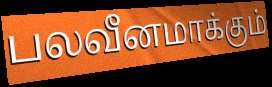
பலவீனமாக்கும்